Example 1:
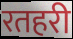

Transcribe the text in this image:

रतहरी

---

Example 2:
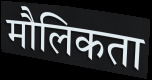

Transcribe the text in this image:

मौलिकता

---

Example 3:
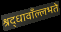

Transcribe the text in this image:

श्रद्धावाँल्लभते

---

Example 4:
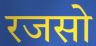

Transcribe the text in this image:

रजसो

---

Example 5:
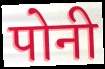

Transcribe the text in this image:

पोनी